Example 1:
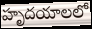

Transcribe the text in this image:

హృదయాలలో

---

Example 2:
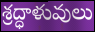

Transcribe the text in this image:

శ్రద్ధాళువులు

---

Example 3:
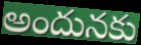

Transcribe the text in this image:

అందునకు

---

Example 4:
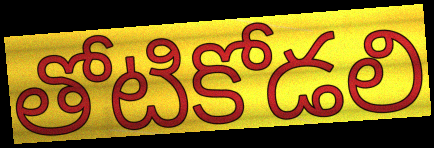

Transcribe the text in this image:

తోటికోడలి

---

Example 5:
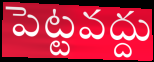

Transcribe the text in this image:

పెట్టవద్దు